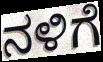
ನಳಿಗೆ